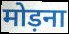
मोड़ना